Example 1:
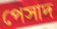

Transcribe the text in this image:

পেসাদ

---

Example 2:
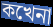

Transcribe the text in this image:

কখেনা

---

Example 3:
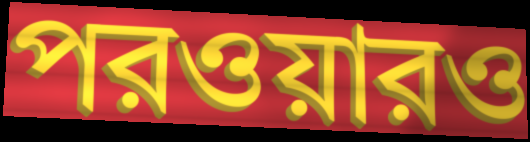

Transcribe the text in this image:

পরওয়ারও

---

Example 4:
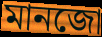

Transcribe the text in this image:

মানজো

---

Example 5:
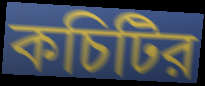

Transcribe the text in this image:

কচিটির